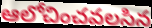
ఆలోచించవలసిన